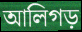
আলিগড়